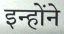
इन्होंने